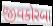
જીવકોરબા